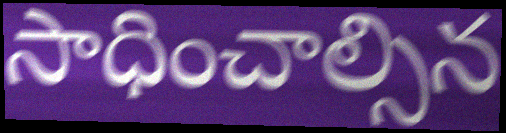
సాధించాల్సిన